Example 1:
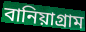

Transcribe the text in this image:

বানিয়াগ্রাম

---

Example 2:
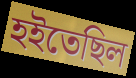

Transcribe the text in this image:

হইতেছিল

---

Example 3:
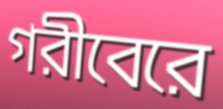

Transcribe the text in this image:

গরীবেরে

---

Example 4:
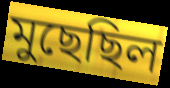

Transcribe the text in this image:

মুছেছিল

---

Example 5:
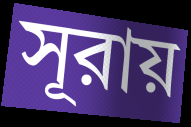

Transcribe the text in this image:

সূরায়